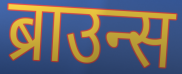
ब्राउन्स